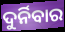
ଦୁର୍ନିବାର